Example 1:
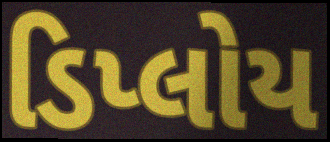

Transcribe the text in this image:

ડિપ્લોય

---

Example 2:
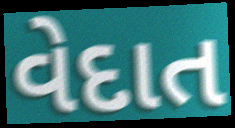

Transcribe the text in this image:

વેદાત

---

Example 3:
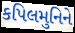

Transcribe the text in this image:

કપિલમુનિને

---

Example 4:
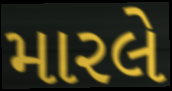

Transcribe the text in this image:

મારલે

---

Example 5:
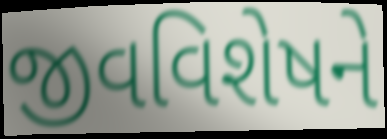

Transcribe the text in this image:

જીવવિશેષને